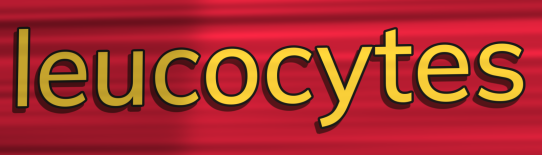
leucocytes